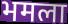
भमला